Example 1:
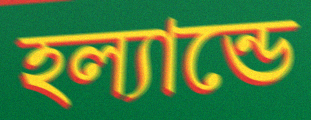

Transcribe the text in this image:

হল্যান্ডে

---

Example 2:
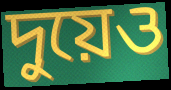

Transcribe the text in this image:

দুয়েও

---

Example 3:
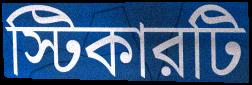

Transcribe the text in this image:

স্টিকারটি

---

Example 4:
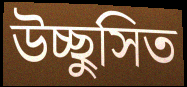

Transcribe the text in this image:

উচ্ছুসিত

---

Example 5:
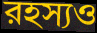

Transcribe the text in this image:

রহস্যও